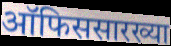
ऑफिससारख्या